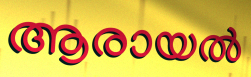
ആരായൽ